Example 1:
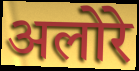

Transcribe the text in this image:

अलोरे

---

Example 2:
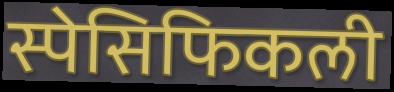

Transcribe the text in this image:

स्पेसिफिकली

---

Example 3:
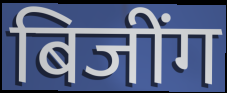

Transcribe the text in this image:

बिजींग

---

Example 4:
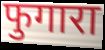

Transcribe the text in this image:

फुगारा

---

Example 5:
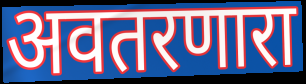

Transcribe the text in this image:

अवतरणारा